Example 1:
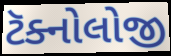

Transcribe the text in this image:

ટૅક્નોલોજી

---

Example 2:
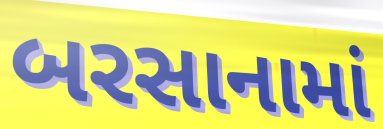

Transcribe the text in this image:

બરસાનામાં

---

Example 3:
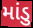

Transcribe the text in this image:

માંડુ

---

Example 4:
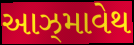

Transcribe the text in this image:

આઝ્માવેથ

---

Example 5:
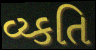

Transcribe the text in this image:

વ્ય્કતિ